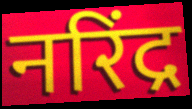
नरिंद्र